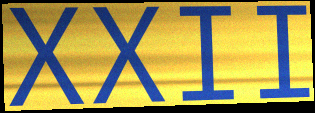
XXII